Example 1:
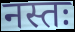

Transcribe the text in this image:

नस्तः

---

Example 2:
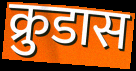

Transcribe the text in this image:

क्रुडास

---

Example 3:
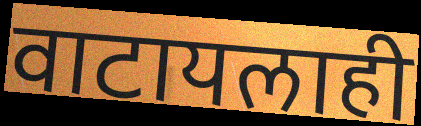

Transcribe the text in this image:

वाटायलाही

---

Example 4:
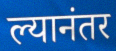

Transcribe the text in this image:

ल्यानंतर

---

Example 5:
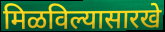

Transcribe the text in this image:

मिळविल्यासारखे